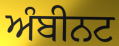
ਅੰਬੀਨਟ